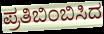
ಪ್ರತಿಬಿಂಬಿಸಿದ